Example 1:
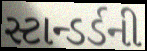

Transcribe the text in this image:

સ્ટાન્ડર્ડની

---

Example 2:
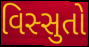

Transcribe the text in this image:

વિસ્સુતો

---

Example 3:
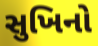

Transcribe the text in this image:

સુખિનો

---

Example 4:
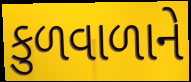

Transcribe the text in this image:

કુળવાળાને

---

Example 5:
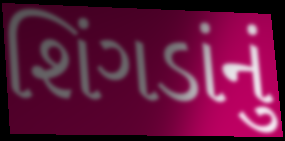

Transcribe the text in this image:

શિંગડાંનું